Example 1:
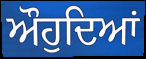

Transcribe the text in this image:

ਔਹੁਦਿਆਂ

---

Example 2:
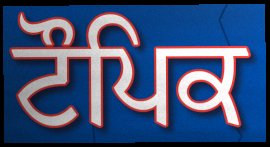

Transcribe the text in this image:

ਟੌਪਿਕ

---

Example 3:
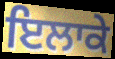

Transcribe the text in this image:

ਇਲਾਕੇ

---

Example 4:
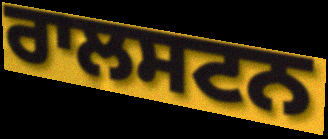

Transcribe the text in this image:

ਰਾਲਸਟਨ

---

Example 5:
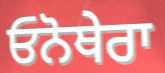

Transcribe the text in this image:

ਓਨੋਥੇਰਾ